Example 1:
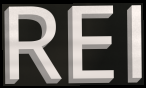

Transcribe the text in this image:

REI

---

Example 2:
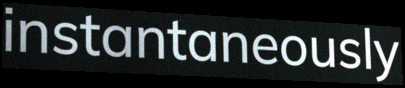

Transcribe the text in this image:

instantaneously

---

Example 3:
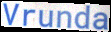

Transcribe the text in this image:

Vrunda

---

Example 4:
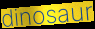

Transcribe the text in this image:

dinosaur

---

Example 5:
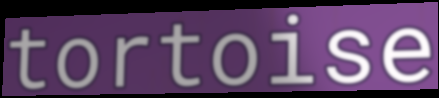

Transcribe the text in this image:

tortoise